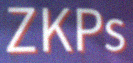
ZKPs